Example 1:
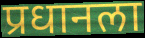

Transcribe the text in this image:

प्रधानला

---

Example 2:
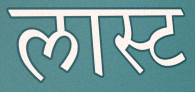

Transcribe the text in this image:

लास्ट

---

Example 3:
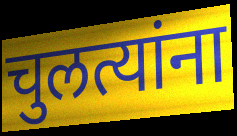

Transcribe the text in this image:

चुलत्यांना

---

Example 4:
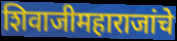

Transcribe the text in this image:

शिवाजीमहाराजांचे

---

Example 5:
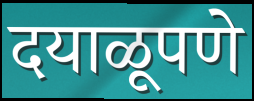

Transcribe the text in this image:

दयाळूपणे